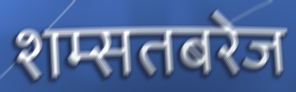
शम्सतबरेज